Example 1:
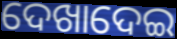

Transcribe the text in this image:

ଦେଖାଦେଇ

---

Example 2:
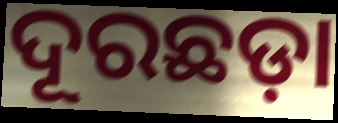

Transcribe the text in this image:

ଦୂରଛଡ଼ା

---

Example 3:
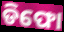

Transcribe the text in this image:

ଡିଫୋ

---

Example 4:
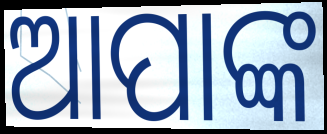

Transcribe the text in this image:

ଆପାଙ୍କ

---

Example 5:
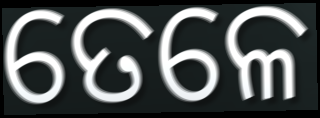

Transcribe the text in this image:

ତେଳେ